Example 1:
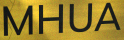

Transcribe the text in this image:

MHUA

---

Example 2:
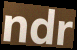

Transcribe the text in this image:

ndr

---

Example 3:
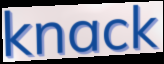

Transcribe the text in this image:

knack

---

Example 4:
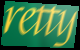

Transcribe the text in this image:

retty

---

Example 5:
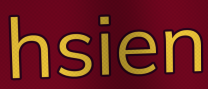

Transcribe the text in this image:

hsien